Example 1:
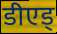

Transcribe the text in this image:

डीएड्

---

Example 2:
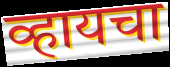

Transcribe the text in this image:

व्हायचा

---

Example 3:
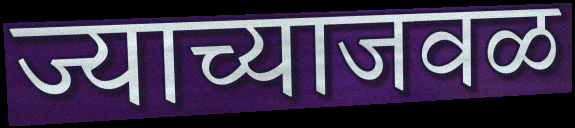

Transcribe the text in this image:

ज्याच्याजवळ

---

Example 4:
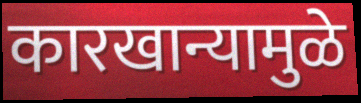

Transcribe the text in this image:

कारखान्यामुळे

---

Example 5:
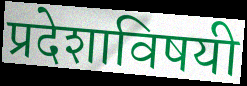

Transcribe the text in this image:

प्रदेशाविषयी